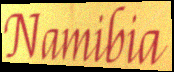
Namibia